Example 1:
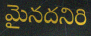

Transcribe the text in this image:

మైనదనిరి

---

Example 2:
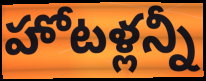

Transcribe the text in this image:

హోటళ్లన్నీ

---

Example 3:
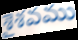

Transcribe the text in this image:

శైశవము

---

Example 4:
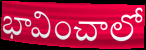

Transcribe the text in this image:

భావించాలో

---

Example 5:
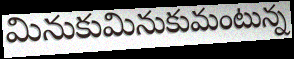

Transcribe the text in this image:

మినుకుమినుకుమంటున్న